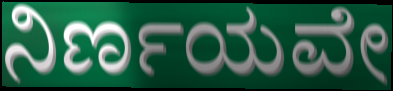
ನಿರ್ಣಯವೇ